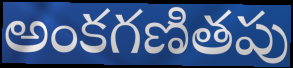
అంకగణితపు